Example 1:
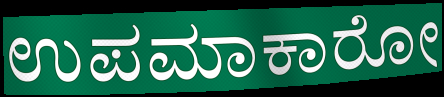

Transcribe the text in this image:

ಉಪಮಾಕಾರೋ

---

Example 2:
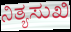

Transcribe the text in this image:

ನಿತ್ಯಸುಖಿ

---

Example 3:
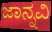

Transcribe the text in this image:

ಜಾನ್ನವಿ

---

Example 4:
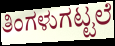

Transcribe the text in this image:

ತಿಂಗಳುಗಟ್ಟಲೆ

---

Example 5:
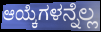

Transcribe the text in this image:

ಆಯ್ಕೆಗಳನ್ನೆಲ್ಲ